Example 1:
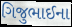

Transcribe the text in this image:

ગિજુભાઈના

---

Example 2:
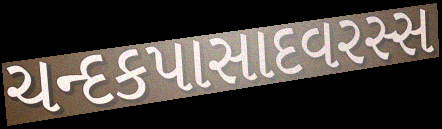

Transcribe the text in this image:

ચન્દકપાસાદવરસ્સ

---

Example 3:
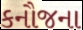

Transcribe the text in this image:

કનૌજના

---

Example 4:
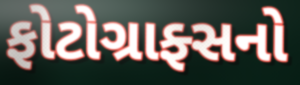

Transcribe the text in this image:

ફોટોગ્રાફ્સનો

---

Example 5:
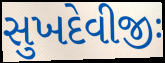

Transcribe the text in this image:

સુખદેવીજીઃ